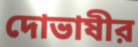
দোভাষীর